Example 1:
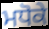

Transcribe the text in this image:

ਮਧੋਕੇ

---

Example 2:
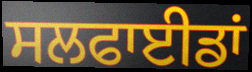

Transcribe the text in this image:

ਸਲਫਾਈਡਾਂ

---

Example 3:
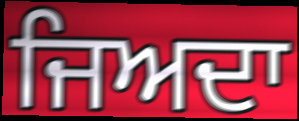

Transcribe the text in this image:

ਜਿਅਦਾ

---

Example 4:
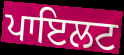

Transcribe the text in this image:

ਪਾਇਲਟ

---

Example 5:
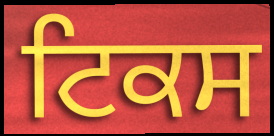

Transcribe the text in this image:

ਟਿਕਸ